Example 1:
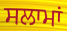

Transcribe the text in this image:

ਸਲਾਮਾਂ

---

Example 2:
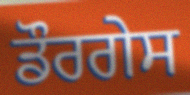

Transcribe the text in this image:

ਡੌਰਗੇਸ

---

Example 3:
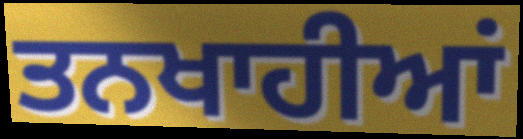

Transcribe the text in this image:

ਤਨਖਾਹੀਆਂ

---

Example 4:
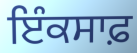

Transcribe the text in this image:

ਇੰਕਸਾਫ਼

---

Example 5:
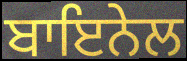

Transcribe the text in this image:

ਬਾਇਨੇਲ